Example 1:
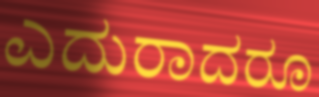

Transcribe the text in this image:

ಎದುರಾದರೂ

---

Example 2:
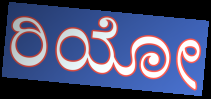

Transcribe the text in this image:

ರಿಯೋ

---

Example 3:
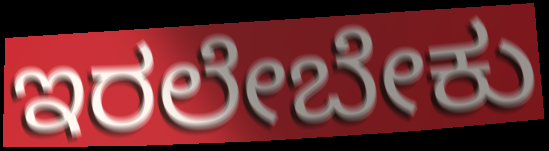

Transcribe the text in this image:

ಇರಲೇಬೇಕು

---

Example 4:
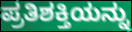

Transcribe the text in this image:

ಪ್ರತಿಶಕ್ತಿಯನ್ನು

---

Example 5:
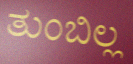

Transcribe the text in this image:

ತುಂಬಿಲ್ಲ